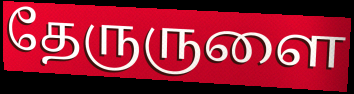
தேருருளை